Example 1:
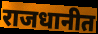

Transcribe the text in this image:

राजधानीत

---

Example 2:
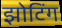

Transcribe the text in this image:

झोटिंग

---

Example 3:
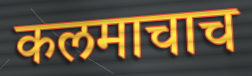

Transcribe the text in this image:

कलमाचाच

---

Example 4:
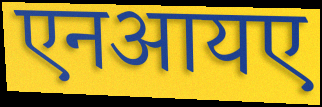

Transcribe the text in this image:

एनआयए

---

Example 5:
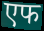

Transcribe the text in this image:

एफ